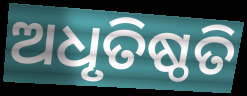
ଅଧୃତିଷ୍ଠତି